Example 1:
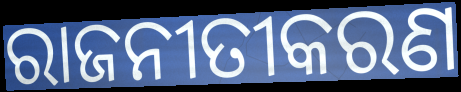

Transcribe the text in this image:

ରାଜନୀତୀକରଣ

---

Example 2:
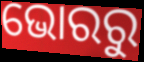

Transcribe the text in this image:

ଭୋରରୁ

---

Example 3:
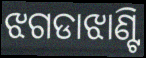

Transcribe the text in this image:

ଝଗଡାଝାଣ୍ଟି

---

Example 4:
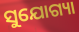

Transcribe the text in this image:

ସୁଯୋଗ୍ୟା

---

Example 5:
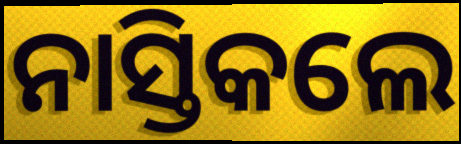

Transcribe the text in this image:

ନାସ୍ତିକଲେ